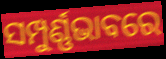
ସମ୍ପୁର୍ଣ୍ଣଭାବରେ